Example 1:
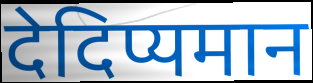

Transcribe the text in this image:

देदिप्यमान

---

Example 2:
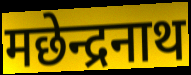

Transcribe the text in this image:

मछेन्द्रनाथ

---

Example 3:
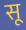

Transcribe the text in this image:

सू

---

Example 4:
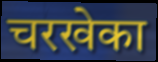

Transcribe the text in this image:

चरखेका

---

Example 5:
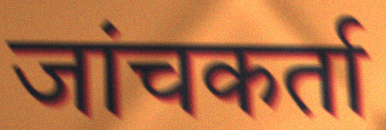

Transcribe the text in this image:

जांचकर्ता